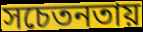
সচেতনতায়